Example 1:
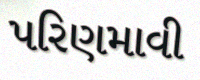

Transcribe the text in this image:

પરિણમાવી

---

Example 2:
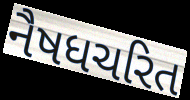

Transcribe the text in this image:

નૈષધચરિત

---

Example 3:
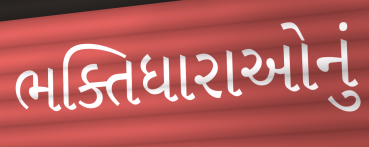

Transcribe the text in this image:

ભક્તિધારાઓનું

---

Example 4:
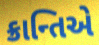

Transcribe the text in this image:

ક્રાન્તિએ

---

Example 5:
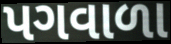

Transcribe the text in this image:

પગવાળા